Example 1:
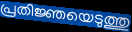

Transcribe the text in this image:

പ്രതിജ്ഞയെടുത്തു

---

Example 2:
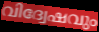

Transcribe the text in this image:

വിദ്വേഷവും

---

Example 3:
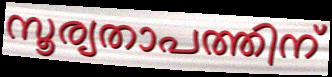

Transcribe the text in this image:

സൂര്യതാപത്തിന്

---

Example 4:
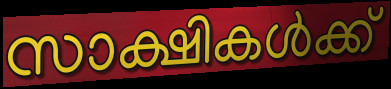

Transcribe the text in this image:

സാക്ഷികൾക്ക്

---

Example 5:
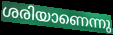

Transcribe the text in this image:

ശരിയാണെന്നു